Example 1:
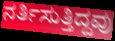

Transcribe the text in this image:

ನರ್ತಿಸುತ್ತಿದ್ದವು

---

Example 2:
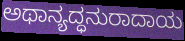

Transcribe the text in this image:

ಅಥಾನ್ಯದ್ಧನುರಾದಾಯ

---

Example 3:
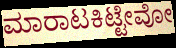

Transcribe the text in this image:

ಮಾರಾಟಕಿಟ್ಟೇವೋ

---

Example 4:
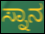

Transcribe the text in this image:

ಸ್ನಾನ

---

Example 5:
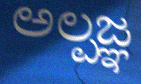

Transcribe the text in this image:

ಅಲ್ಪಜ್ಞ